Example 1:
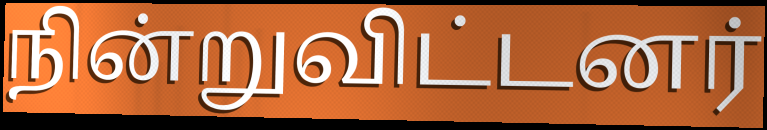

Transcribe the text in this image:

நின்றுவிட்டனர்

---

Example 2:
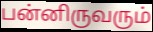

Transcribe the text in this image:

பன்னிருவரும்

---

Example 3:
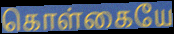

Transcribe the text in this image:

கொள்கையே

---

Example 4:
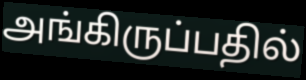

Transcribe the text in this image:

அங்கிருப்பதில்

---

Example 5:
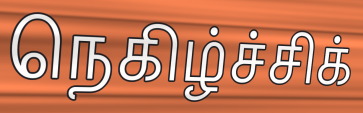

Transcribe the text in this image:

நெகிழ்ச்சிக்